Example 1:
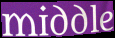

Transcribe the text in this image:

middle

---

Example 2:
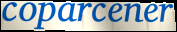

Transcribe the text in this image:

coparcener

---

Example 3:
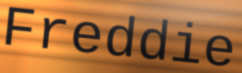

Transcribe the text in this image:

Freddie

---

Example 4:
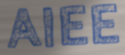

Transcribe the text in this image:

AIEE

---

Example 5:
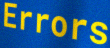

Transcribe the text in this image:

Errors